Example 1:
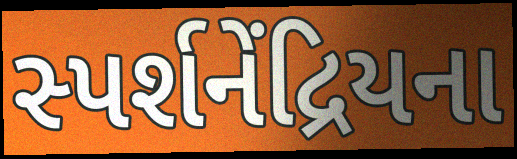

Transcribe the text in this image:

સ્પર્શનેંદ્રિયના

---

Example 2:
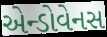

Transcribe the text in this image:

એન્ડોવેનસ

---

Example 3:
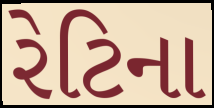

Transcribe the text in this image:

રેટિના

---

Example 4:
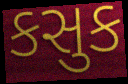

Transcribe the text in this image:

કસુક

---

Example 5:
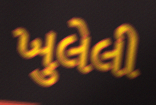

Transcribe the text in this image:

ખુલેલી